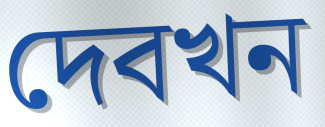
দেবখন